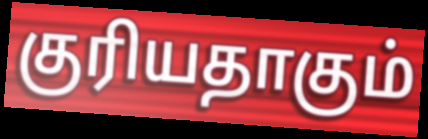
குரியதாகும்